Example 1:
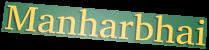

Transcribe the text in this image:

Manharbhai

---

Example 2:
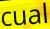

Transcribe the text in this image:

cual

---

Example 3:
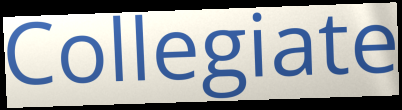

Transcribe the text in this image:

Collegiate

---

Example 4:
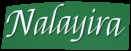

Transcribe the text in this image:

Nalayira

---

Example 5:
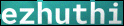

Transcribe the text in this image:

ezhuthi